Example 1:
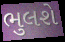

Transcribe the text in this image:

ભુલશે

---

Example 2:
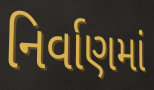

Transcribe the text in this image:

નિર્વાણમાં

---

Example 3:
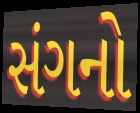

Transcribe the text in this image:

સંગનો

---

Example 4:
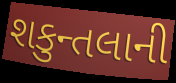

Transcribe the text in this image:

શકુન્તલાની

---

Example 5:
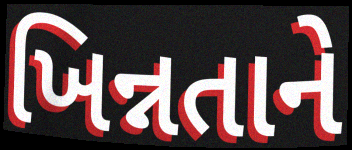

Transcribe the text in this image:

ખિન્નતાને